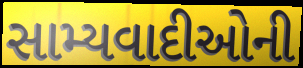
સામ્યવાદીઓની